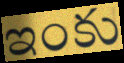
ఇంకు